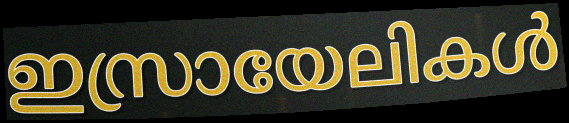
ഇസ്രായേലികൾ